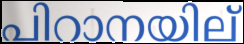
പിറാനയില്